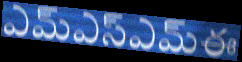
ఎమ్ఎస్ఎమ్ఈ